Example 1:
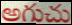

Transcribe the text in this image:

అగుచు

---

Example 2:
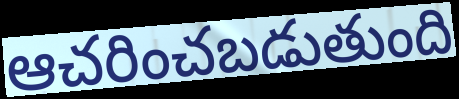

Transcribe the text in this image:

ఆచరించబడుతుంది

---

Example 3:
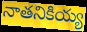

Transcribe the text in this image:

నాతనికియ్య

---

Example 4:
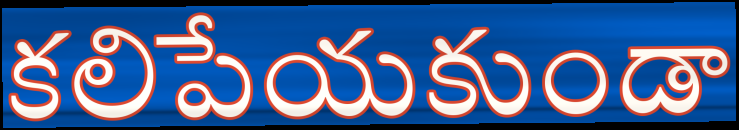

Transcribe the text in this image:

కలిపేయకుండా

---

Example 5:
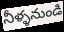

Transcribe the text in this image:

నీళ్ళనుండి